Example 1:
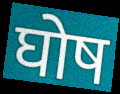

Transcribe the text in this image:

घोष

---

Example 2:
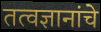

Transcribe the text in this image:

तत्वज्ञानांचे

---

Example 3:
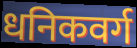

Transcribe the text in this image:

धनिकवर्ग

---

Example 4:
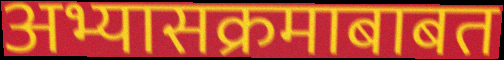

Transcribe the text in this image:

अभ्यासक्रमाबाबत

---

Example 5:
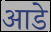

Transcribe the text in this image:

आडे